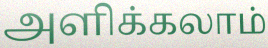
அளிக்கலாம்